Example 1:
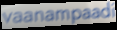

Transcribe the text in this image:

vaanampaadi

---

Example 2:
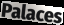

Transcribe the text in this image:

Palaces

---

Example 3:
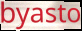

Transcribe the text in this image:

byasto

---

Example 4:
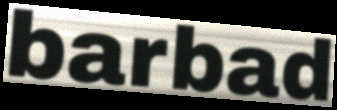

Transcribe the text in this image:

barbad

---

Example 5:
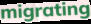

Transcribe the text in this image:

migrating